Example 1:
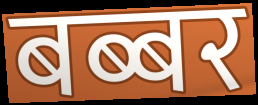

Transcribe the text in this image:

बब्बर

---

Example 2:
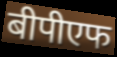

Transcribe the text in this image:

बीपीएफ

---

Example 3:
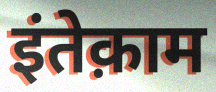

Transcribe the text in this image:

इंतेक़ाम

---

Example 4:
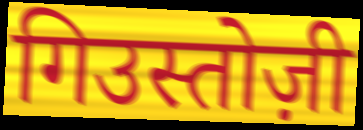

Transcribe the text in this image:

गिउस्तोज़ी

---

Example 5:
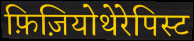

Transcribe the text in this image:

फ़िज़ियोथेरेपिस्ट